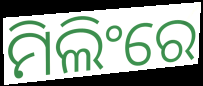
ମିଲିଂରେ